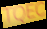
TQEC